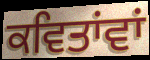
ਕਵਿਤਾਂਵਾਂ